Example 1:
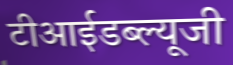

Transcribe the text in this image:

टीआईडब्ल्यूजी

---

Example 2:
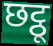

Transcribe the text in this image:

छट्ठू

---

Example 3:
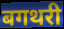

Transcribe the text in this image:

बगथरी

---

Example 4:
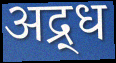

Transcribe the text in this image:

अद्र्ध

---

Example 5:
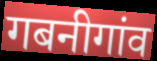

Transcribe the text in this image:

गबनीगांव